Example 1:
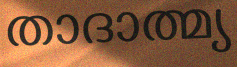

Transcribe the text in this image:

താദാത്മ്യ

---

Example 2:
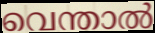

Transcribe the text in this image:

വെന്താൽ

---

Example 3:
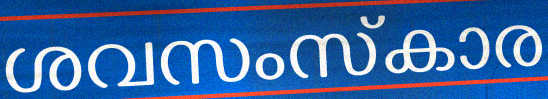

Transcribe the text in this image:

ശവസംസ്‌കാര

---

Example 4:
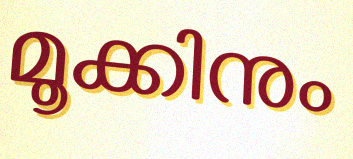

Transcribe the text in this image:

മൂക്കിനും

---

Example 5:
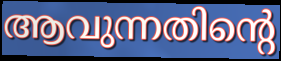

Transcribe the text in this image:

ആവുന്നതിന്റെ